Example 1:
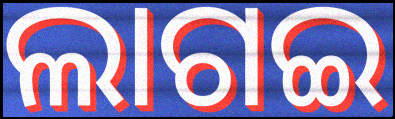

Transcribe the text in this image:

ଲାଗଇ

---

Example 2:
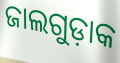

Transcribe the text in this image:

ଜାଲଗୁଡ଼ାକ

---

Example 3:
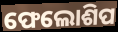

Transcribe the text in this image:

ଫେଲୋଶିପ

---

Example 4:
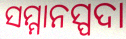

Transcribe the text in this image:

ସମ୍ମାନସ୍ପଦା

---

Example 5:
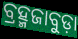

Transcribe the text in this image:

ବ୍ରହ୍ମଜାବୁଡ଼ା